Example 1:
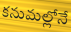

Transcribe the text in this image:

కనుమల్లోనే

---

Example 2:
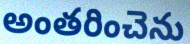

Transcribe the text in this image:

అంతరించెను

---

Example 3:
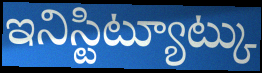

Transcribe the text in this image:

ఇనిస్టిట్యూట్కు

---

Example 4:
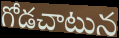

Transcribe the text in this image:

గోడచాటున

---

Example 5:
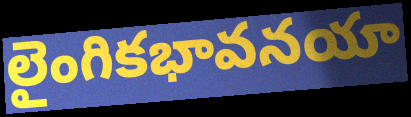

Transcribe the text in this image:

లైంగికభావనయా